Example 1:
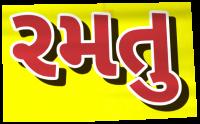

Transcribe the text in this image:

રમતુ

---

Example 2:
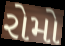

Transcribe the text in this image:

રોમો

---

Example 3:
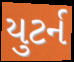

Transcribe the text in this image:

યુટર્ન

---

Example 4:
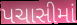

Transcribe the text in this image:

પચાસીમાં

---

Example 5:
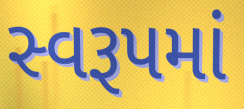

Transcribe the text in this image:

સ્વરૂપમાં